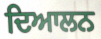
ਦਿਆਲਨ